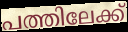
പത്തിലേക്ക്